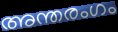
അന്തരംഗം